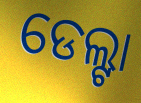
ଡେଲ୍ଟା